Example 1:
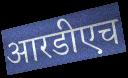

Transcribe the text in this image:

आरडीएच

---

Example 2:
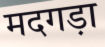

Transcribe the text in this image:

मदगड़ा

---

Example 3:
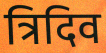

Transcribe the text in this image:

त्रिदिव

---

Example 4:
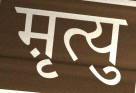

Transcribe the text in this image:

म़ृत्यु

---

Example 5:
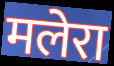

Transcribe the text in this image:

मलेरा